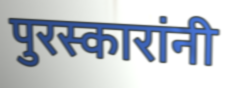
पुरस्कारांनी